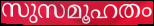
സുസമൂഹതം